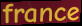
france